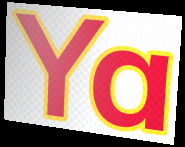
Ya